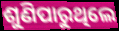
ଶୁଣିପାରୁଥିଲେ